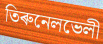
তিৰুনেলভেলী